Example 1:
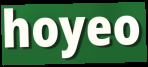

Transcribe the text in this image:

hoyeo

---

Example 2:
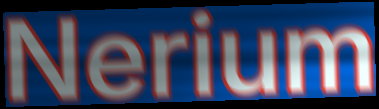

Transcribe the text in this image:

Nerium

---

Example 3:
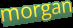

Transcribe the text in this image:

morgan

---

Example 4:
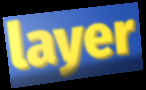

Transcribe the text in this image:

layer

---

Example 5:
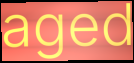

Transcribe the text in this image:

aged